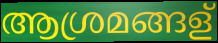
ആശ്രമങ്ങള്